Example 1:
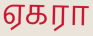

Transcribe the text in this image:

ஏகரா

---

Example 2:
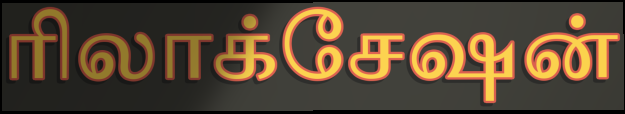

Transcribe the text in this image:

ரிலாக்சேஷன்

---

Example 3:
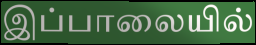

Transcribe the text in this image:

இப்பாலையில்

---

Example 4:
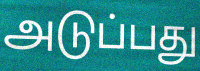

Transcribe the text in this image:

அடுப்பது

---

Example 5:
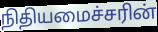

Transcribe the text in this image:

நிதியமைச்சரின்